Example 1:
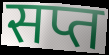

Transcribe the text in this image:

सप्त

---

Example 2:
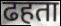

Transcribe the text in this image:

ढहता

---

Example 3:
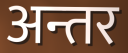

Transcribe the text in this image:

अन्‍तर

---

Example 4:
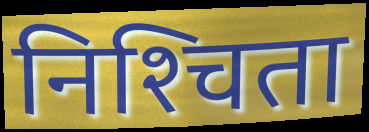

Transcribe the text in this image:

निश्चिता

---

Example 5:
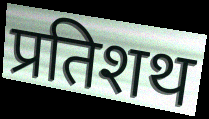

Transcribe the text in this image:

प्रतिशथ